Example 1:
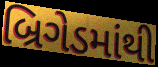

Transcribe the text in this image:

બ્રિગેડમાંથી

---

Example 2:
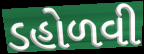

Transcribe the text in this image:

ડહોળવી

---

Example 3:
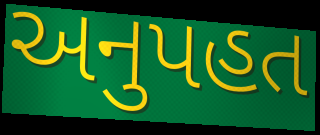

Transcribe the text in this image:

અનુપહત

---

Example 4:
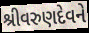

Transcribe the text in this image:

શ્રીવરુણદેવને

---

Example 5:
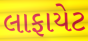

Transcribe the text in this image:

લાફાયેટ